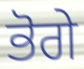
ਭੋਗੇ